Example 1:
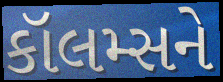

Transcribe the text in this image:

કૉલમ્સને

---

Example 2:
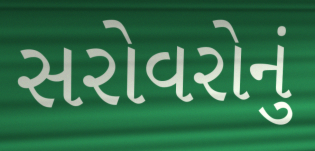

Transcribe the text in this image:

સરોવરોનું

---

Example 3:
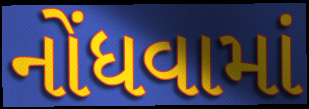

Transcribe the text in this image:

નોંધવામાં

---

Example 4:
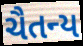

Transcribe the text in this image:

ચૈતન્ય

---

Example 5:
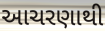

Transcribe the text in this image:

આચરણાથી